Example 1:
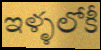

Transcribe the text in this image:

ఇళ్ళలోకీ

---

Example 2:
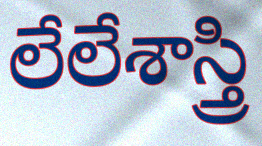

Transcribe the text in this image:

లేలేశాస్త్రి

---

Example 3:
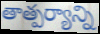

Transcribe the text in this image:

తాత్పర్యాన్ని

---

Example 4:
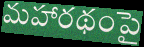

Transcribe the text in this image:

మహారథంపై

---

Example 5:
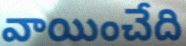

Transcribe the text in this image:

వాయించేది